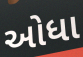
ઓધા